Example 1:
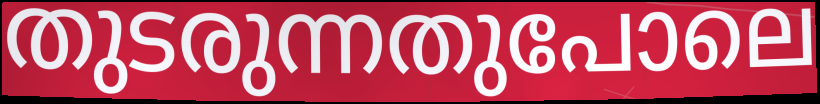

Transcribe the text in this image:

തുടരുന്നതുപോലെ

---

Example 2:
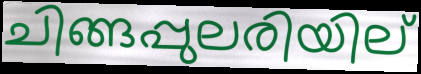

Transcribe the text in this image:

ചിങ്ങപ്പുലരിയില്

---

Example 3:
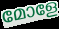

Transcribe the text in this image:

മോളേ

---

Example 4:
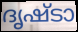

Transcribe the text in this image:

ദൃഷ്ടാ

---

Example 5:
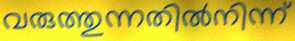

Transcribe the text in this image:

വരുത്തുന്നതിൽനിന്ന്